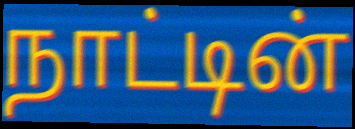
நாட்டின்